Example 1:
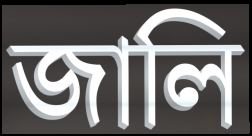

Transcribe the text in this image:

জালি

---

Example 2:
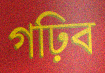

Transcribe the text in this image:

গঢ়িব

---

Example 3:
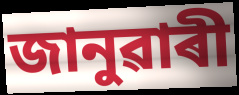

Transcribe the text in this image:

জানুৱাৰী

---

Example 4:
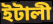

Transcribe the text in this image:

ইটালী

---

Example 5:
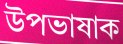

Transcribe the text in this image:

উপভাষাক